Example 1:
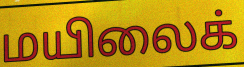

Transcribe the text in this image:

மயிலைக்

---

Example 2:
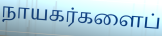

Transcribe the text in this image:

நாயகர்களைப்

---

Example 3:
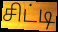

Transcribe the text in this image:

சிட்டி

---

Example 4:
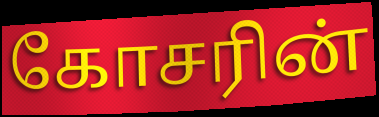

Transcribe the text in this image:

கோசரின்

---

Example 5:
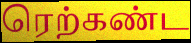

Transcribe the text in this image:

ரெற்கண்ட